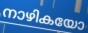
നാഴികയോ